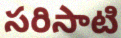
సరిసాటి